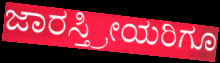
ಜಾರಸ್ತ್ರೀಯರಿಗೂ